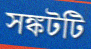
সঙ্কটটি